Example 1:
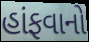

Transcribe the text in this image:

હાંફવાનો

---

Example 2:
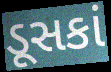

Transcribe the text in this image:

ડૂસકાં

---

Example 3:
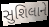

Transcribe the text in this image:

સુશિલાને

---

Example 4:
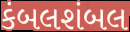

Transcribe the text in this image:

કંબલશંબલ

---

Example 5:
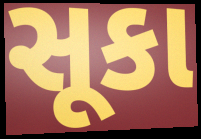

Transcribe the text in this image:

સૂકા